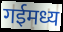
गईमध्य